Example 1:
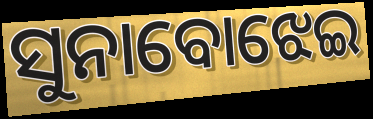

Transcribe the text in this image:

ସୁନାବୋଝେଇ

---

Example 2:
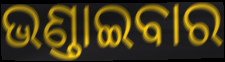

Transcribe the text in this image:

ଭଣ୍ଡାଇବାର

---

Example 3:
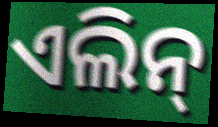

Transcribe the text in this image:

ଏଲିନ୍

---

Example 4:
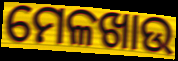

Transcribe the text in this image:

ମେଳଖାଉ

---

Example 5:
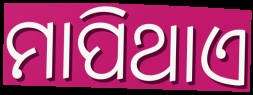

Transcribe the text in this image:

ମାପିଥାଏ